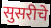
सुसरीचे